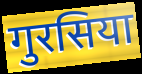
गुरसिया